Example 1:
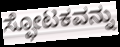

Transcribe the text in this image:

ಸ್ಫೋಟಕವನ್ನು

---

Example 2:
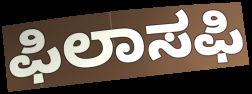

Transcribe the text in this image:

ಫಿಲಾಸಫಿ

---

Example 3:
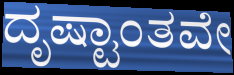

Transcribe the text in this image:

ದೃಷ್ಟಾಂತವೇ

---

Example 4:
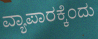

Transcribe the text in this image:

ವ್ಯಾಪಾರಕ್ಕೆಂದು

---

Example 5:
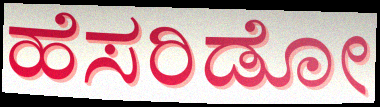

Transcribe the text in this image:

ಹೆಸರಿಡೋ